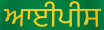
ਆਈਪੀਸ